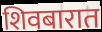
शिवबारात